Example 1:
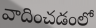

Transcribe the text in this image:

వాదించడంలో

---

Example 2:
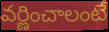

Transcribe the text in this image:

వర్ణించాలంటే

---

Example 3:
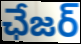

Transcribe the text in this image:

ఛేజర్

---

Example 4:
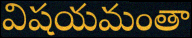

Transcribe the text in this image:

విషయమంతా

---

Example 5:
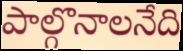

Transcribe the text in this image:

పాల్గొనాలనేది